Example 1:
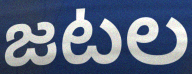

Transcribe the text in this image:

జటల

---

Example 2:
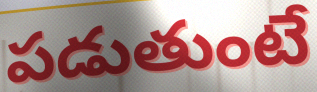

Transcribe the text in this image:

పడుతుంటే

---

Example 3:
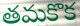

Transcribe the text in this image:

తమకొక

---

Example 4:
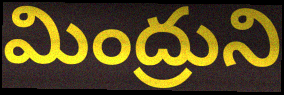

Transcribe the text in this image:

మింద్రుని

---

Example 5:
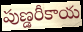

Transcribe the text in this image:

పుణ్డరీకాయ